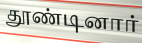
தூண்டினார்